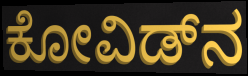
ಕೋವಿಡ್‌ನ